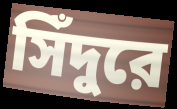
সিঁদুরে